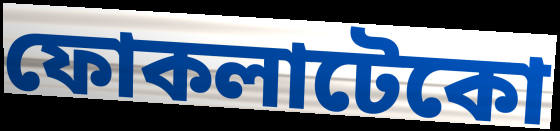
ফোকলাটেকো